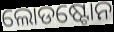
ଲୋଡଷ୍ଟୋନ